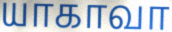
யாகாவா